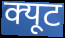
क्यूट